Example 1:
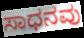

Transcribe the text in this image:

ಸಾಧನವು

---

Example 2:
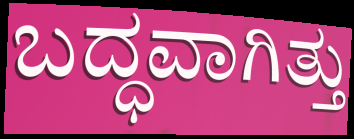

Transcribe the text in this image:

ಬದ್ಧವಾಗಿತ್ತು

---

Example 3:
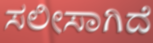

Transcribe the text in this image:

ಸಲೀಸಾಗಿದೆ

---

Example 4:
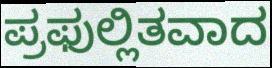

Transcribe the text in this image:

ಪ್ರಫುಲ್ಲಿತವಾದ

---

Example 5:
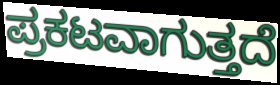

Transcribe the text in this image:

ಪ್ರಕಟವಾಗುತ್ತದೆ